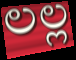
లల్ల